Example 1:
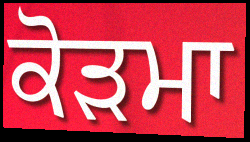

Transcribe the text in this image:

ਕੋੜਮਾ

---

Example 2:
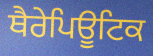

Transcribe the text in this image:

ਥੈਰੇਪਿਊਟਿਕ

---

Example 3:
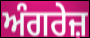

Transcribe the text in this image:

ਅੰਗਰੇਜ਼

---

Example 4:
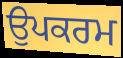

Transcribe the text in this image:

ਉਪਕਰਮ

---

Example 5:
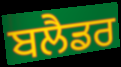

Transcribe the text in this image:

ਬਲੈਡਰ